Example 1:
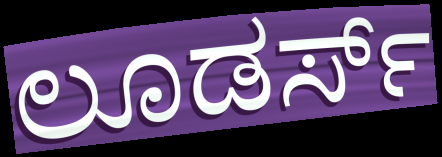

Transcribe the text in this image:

ಲೂಡರ್ಸ್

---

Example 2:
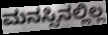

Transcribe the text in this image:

ಮನಸ್ಸಿನಲ್ಲಿಲ್ಲ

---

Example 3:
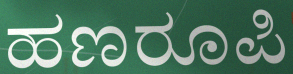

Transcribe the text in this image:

ಹಣರೂಪಿ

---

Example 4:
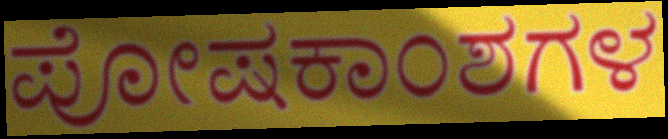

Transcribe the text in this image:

ಪೋಷಕಾಂಶಗಳ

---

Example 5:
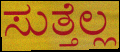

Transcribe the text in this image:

ಸುತ್ತೆಲ್ಲ